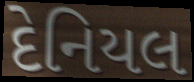
દેનિયલ